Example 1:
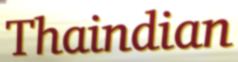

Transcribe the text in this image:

Thaindian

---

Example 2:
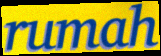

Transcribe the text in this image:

rumah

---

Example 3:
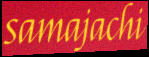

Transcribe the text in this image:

samajachi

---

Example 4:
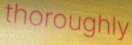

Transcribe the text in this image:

thoroughly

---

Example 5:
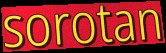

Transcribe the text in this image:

sorotan